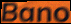
Bano